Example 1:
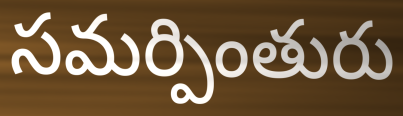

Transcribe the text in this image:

సమర్పింతురు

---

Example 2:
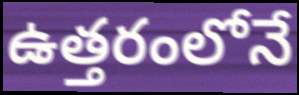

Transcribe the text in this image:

ఉత్తరంలోనే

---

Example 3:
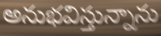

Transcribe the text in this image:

అనుభవిస్తున్నాను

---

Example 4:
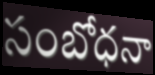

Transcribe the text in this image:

సంబోధనా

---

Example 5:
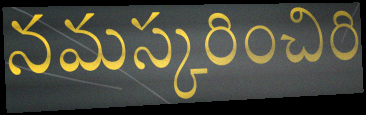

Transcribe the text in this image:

నమస్కరించిరి